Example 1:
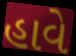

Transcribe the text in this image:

હાવે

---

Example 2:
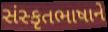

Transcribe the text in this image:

સંસ્કૃતભાષાને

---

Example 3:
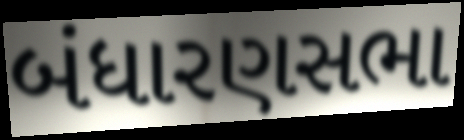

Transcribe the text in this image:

બંધારણસભા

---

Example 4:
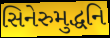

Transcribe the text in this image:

સિનેરુમુદ્ધનિ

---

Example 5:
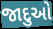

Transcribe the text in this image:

જાદુઓ